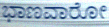
ಭಾಣವಾರೋ